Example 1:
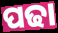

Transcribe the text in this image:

ପଢା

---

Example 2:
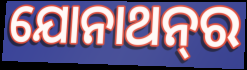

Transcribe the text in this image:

ଯୋନାଥନ୍‍ର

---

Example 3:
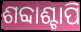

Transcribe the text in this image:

ଶବ୍ଦାଶ୍ଚାପି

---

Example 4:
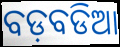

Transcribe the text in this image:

ବଡ଼ବଡିଆ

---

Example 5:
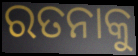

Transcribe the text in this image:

ରତନାକୁ